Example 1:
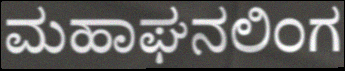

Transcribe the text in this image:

ಮಹಾಘನಲಿಂಗ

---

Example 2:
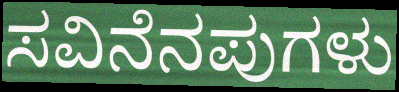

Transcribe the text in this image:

ಸವಿನೆನಪುಗಳು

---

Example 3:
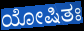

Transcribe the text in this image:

ಯೋಷಿತಃ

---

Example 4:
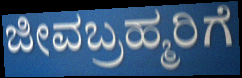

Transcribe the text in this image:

ಜೀವಬ್ರಹ್ಮರಿಗೆ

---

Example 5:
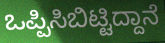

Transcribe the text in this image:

ಒಪ್ಪಿಸಿಬಿಟ್ಟಿದ್ದಾನೆ